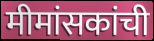
मीमांसकांची